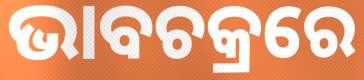
ଭାବଚକ୍ରରେ